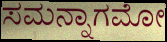
ಸಮನ್ನಾಗಮೋ